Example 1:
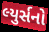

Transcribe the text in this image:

લ્યુર્સનો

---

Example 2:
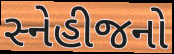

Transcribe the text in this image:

સ્નેહીજનો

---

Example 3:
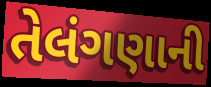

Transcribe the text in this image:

તેલંગણાની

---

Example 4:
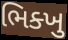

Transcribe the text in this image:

ભિક્ખુ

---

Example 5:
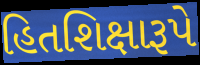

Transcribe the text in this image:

હિતશિક્ષારૂપે